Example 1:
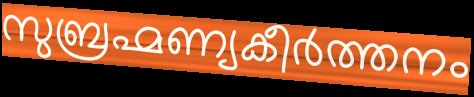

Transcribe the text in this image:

സുബ്രഹ്മണ്യകീർത്തനം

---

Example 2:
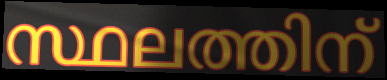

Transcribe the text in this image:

സ്ഥലത്തിന്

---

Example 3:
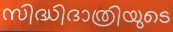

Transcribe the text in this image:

സിദ്ധിദാത്രിയുടെ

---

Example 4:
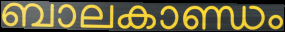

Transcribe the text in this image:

ബാലകാണ്ഡം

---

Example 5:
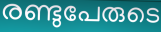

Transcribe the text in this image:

രണ്ടുപേരുടെ